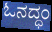
ಓನದ್ಧಂ